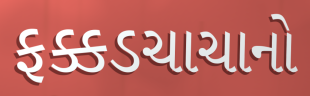
ફક્કડચાચાનો